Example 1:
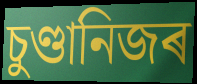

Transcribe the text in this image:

চুণ্ডানিজৰ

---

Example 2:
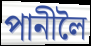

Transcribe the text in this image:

পানীলৈ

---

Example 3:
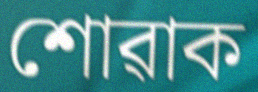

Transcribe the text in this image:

শোৱাক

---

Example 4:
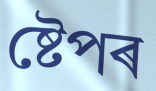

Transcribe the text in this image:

ষ্টেপৰ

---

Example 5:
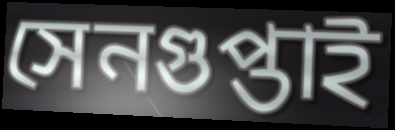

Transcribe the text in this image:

সেনগুপ্তাই